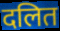
दलित